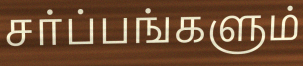
சர்ப்பங்களும்